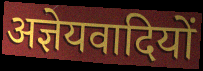
अज्ञेयवादियों